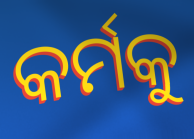
କର୍ମକୁ